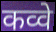
कव्वे